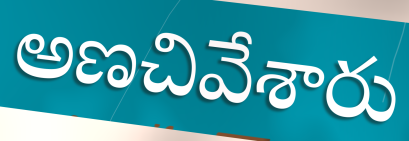
అణచివేశారు